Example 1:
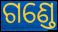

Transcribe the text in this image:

ଗଣ୍ଡେ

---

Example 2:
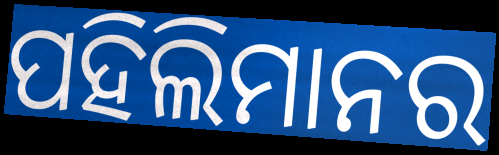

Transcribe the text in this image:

ପହିଲିମାନର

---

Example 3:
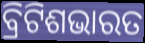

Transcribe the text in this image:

ବ୍ରିଟିଶଭାରତ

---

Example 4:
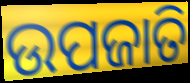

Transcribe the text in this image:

ଉପଜାତି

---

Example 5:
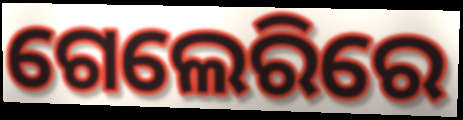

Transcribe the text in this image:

ଗେଲେରିରେ